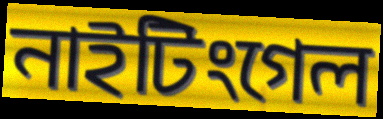
নাইটিংগেল